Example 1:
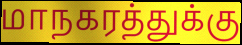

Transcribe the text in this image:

மாநகரத்துக்கு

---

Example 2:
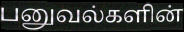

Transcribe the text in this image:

பனுவல்களின்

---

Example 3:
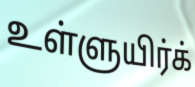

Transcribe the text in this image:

உள்ளுயிர்க்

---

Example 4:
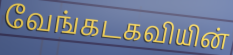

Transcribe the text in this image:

வேங்கடகவியின்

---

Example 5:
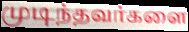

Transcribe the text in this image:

முடிந்தவர்களை